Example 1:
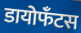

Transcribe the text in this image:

डायोफँटस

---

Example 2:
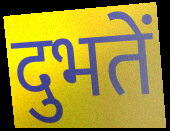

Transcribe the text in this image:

दुभतें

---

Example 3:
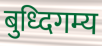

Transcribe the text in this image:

बुध्दिगम्य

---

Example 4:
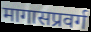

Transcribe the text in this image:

मागासप्रवर्ग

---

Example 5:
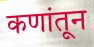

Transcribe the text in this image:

कणांतून